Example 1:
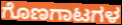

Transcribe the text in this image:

ಗೊಣಗಾಟಗಳ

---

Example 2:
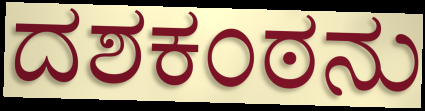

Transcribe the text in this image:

ದಶಕಂಠನು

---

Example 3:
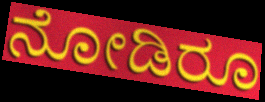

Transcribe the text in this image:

ನೋಡಿರೂ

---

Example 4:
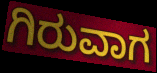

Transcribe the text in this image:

ಗಿರುವಾಗ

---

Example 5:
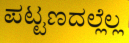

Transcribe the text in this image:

ಪಟ್ಟಣದಲ್ಲೆಲ್ಲ